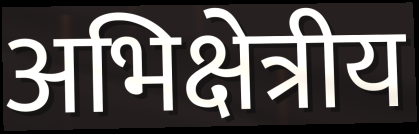
अभिक्षेत्रीय